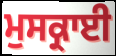
ਮੁਸਕ੍ਰਾਈ